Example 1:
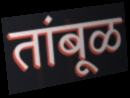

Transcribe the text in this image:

तांबूळ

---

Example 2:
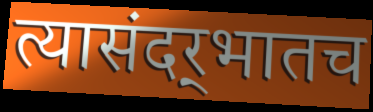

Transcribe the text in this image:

त्यासंदर्भातच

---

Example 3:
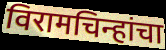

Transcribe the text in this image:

विरामचिन्हांचा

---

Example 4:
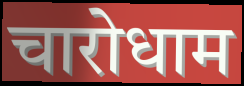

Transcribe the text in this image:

चारोधाम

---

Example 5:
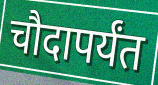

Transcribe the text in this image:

चौदापर्यंत